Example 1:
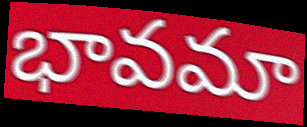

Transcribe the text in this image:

భావమా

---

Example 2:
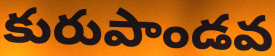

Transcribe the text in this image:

కురుపాండవ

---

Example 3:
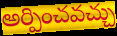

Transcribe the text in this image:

అర్పించవచ్చు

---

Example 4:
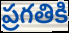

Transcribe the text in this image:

ప్రగతికి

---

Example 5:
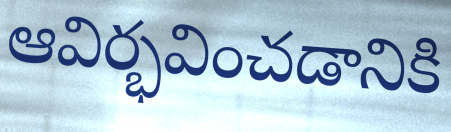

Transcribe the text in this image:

ఆవిర్భవించడానికి